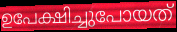
ഉപേക്ഷിച്ചുപോയത്